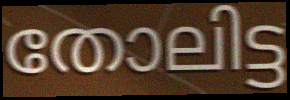
തോലിട്ട